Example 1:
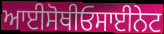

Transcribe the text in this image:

ਆਈਸੋਥੀਓਸਾਈਨੇਟ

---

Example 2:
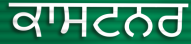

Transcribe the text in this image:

ਕਾਸਟਨਰ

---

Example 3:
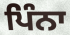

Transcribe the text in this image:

ਪਿੰਨਾ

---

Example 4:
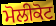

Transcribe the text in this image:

ਮੋਲੀਕੋਟ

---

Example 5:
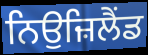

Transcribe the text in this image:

ਨਿਉਜ਼ਿਲੈਂਡ